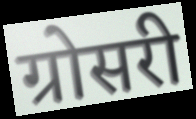
ग्रोसरी